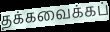
தக்கவைக்கப்